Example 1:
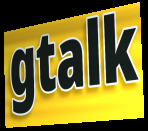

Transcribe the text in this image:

gtalk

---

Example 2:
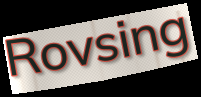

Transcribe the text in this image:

Rovsing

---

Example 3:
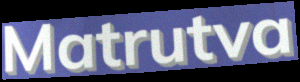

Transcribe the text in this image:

Matrutva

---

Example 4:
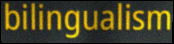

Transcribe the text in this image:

bilingualism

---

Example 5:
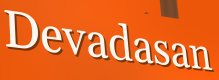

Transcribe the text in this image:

Devadasan